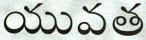
యువత